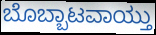
ಬೊಬ್ಬಾಟವಾಯ್ತು